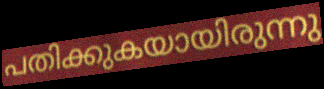
പതിക്കുകയായിരുന്നു